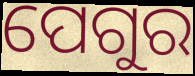
ପେଗୁର